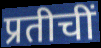
प्रतीचीं